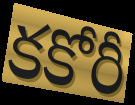
కకోరీ